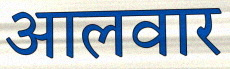
आलवार